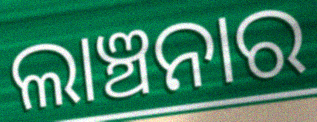
ଲାଞ୍ଚନାର